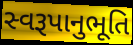
સ્વરૂપાનુભૂતિ